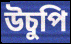
উচুপি